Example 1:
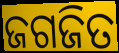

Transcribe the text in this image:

ଜଗଜିତ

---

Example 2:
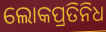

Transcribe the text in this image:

ଲୋକପ୍ରତିନିଧ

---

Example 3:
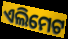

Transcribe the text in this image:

ଏଲିମେଟ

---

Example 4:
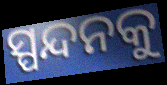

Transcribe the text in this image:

ସ୍ପନ୍ଦନକୁ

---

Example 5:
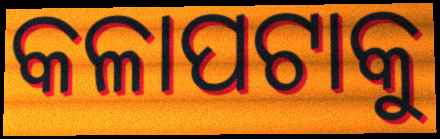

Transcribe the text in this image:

କଳାପଟାକୁ